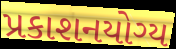
પ્રકાશનયોગ્ય